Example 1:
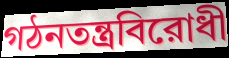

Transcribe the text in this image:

গঠনতন্ত্রবিরোধী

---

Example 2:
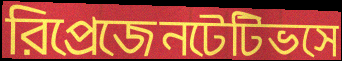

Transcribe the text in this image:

রিপ্রেজেনটেটিভসে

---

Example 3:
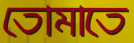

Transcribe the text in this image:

তোমাতে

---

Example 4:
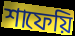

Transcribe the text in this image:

শাফেয়ি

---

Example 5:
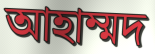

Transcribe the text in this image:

আহাম্মদ